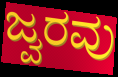
ಜ್ವರವು